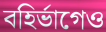
বহির্ভাগেও